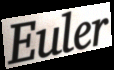
Euler